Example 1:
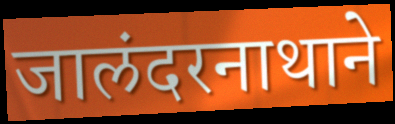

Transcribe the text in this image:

जालंदरनाथाने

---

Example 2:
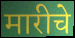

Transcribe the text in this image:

मारीचे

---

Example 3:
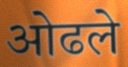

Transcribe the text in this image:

ओढले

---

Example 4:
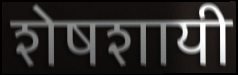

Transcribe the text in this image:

शेषशायी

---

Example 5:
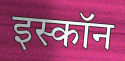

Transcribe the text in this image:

इस्कॉन